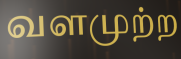
வளமுற்ற